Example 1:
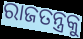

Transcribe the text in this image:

ରାଜତନ୍ତ୍ରକୁ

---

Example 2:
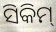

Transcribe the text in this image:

ସିକିମ୍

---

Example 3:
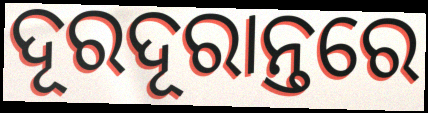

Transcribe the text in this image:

ଦୂରଦୂରାନ୍ତରେ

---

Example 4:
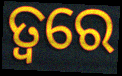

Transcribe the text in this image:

ତ୍ଵରେ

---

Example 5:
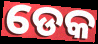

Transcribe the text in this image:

ଡେକ